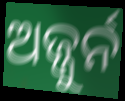
ଅଜ୍ଜୁର୍ନ